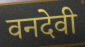
वनदेवी